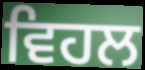
ਵਿਹਲ